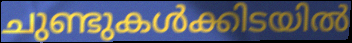
ചുണ്ടുകൾക്കിടയിൽ